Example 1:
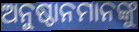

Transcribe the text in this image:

ଅନୁଷ୍ଠାନମାନଙ୍କୁ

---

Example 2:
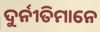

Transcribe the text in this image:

ଦୁର୍ନୀତିମାନେ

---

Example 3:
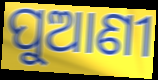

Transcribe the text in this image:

ପୁଆଣୀ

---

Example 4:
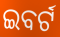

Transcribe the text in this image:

ଇବର୍ଟ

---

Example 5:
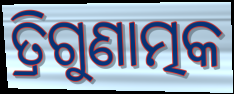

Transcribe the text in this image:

ତ୍ରିଗୁଣାତ୍ମକ